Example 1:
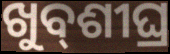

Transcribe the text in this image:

ଖୁବ୍‌ଶୀଘ୍ର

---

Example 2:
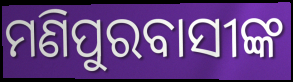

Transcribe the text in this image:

ମଣିପୁରବାସୀଙ୍କ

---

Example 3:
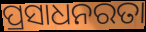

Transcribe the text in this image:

ପ୍ରସାଧନରତା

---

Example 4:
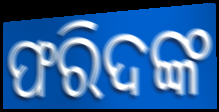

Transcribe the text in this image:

ଫରିଦଙ୍କ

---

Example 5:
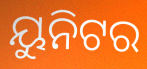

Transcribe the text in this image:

ୟୁନିଟର